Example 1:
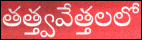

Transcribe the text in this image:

తత్త్వవేత్తలలో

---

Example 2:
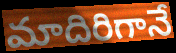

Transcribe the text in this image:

మాదిరిగానే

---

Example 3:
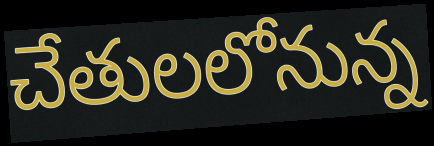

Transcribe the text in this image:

చేతులలోనున్న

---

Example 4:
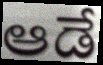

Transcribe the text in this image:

ఆడే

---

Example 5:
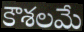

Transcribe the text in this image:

కౌశలమే